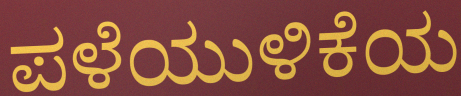
ಪಳೆಯುಳಿಕೆಯ